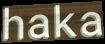
haka